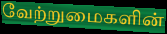
வேற்றுமைகளின்